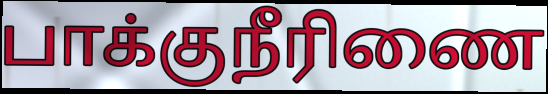
பாக்குநீரிணை